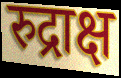
रुद्राक्ष